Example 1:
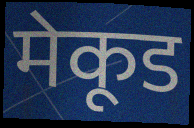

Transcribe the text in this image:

मेकूड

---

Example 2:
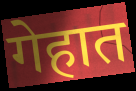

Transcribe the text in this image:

गेहात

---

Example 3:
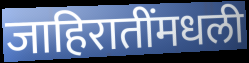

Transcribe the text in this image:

जाहिरातींमधली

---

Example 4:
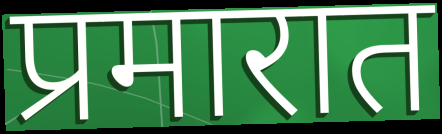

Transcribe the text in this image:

प्रमारात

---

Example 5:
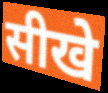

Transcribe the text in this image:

सीखे